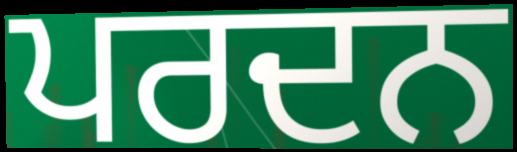
ਪਰਦਨ